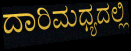
ದಾರಿಮಧ್ಯದಲ್ಲಿ